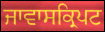
ਜਾਵਾਸਕ੍ਰਿਪਟ